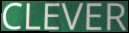
CLEVER